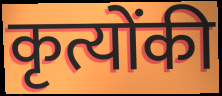
कृत्योंकी